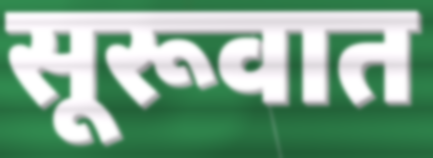
सूरूवात